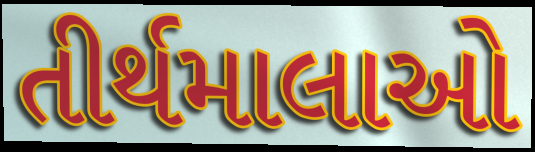
તીર્થમાલાઓ